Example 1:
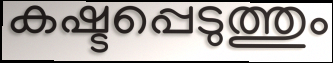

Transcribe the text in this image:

കഷ്ടപ്പെടുത്തും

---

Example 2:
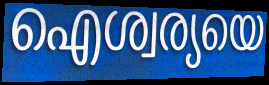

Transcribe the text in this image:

ഐശ്വര്യയെ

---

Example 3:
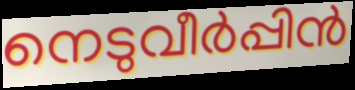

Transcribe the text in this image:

നെടുവീർപ്പിൻ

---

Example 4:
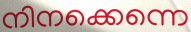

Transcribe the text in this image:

നിനക്കെന്നെ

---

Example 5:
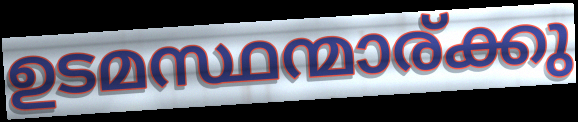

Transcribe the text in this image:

ഉടമസ്ഥന്മാര്ക്കു